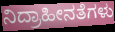
ನಿದ್ರಾಹೀನತೆಗಳು